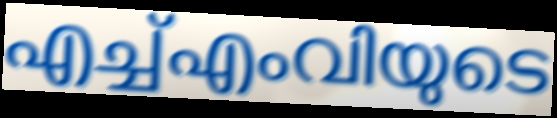
എച്ച്എംവിയുടെ